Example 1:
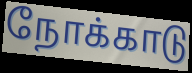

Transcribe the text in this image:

நோக்காடு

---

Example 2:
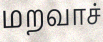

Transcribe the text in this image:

மறவாச்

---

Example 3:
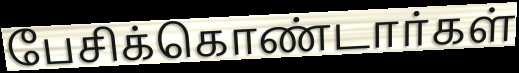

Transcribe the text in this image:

பேசிக்கொண்டார்கள்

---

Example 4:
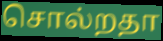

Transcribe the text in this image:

சொல்றதா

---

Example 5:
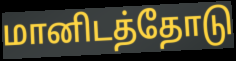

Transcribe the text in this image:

மானிடத்தோடு